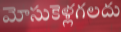
మోసుకెళ్లగలదు